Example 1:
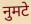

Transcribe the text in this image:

नुमटे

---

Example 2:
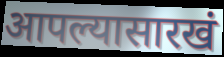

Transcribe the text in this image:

आपल्यासारखं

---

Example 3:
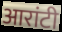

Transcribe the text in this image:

आरांटी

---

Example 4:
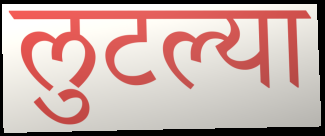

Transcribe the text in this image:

लुटल्या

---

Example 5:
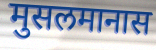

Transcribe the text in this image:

मुसलमानास